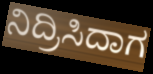
ನಿದ್ರಿಸಿದಾಗ